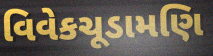
વિવેકચૂડામણિ